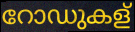
റോഡുകള്